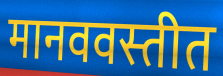
मानववस्तीत